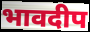
भावदीप